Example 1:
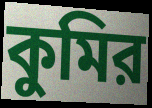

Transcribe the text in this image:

কুমির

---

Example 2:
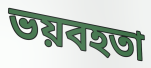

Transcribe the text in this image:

ভয়বহতা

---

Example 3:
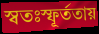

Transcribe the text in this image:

স্বতঃস্ফূর্ততায়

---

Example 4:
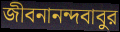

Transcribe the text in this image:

জীবনানন্দবাবুর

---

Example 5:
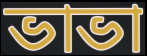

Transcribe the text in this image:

ভাভা